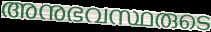
അനുഭവസ്ഥരുടെ